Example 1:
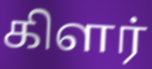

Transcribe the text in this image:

கிளர்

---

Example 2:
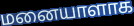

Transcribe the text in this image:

மனையாளாக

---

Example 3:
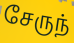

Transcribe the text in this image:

சேருந்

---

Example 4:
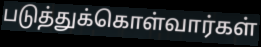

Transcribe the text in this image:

படுத்துக்கொள்வார்கள்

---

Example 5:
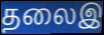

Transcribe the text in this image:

தலைஇ